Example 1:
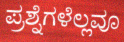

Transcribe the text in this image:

ಪ್ರಶ್ನೆಗಳೆಲ್ಲವೂ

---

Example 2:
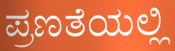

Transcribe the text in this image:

ಪ್ರಣತೆಯಲ್ಲಿ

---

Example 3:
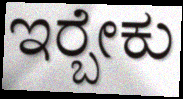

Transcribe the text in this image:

ಇರ‍್ಬೇಕು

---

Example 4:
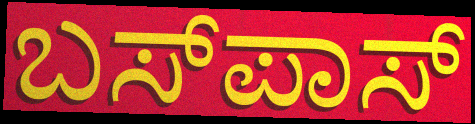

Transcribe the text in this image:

ಬಸ್‍ಪಾಸ್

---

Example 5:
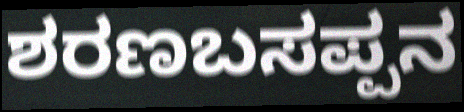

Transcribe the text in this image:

ಶರಣಬಸಪ್ಪನ